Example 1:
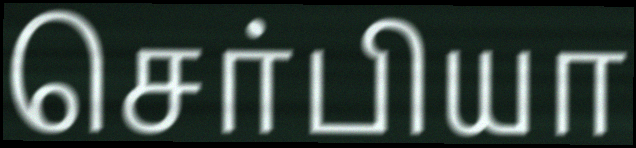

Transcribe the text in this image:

செர்பியா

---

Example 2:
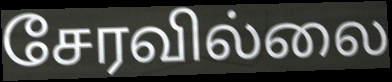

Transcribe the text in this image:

சேரவில்லை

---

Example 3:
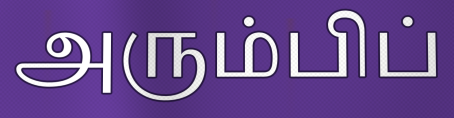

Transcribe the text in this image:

அரும்பிப்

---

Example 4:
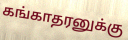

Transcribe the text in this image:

கங்காதரனுக்கு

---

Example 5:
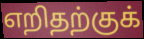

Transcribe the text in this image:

எறிதற்குக்